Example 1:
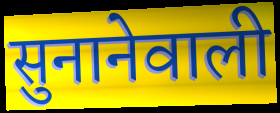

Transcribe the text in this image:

सुनानेवाली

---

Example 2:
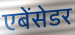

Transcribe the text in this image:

एबेंसेडर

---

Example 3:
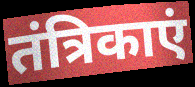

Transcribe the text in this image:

तंत्रिकाएं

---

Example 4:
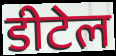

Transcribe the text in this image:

डीटेल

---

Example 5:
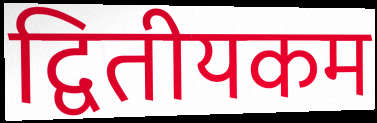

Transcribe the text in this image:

द्वितीयकम